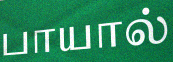
பாயால்